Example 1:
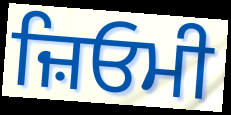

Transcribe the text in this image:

ਜ਼ਿਓਮੀ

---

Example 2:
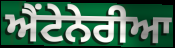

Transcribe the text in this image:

ਐਂਟੇਨੇਰੀਆ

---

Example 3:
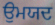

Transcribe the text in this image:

ਉਮਯਦ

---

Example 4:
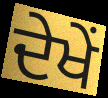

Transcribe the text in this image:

ਦੇਖੇਂ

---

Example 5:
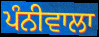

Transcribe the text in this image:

ਪੰਨੀਵਾਲਾ